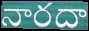
నారదా